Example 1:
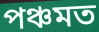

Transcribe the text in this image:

পঞ্চমত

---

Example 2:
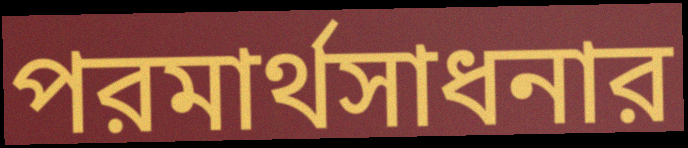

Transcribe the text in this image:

পরমার্থসাধনার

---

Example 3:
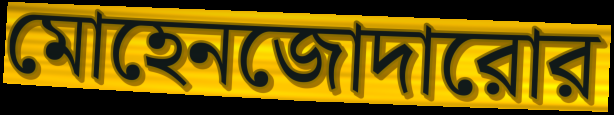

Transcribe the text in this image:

মোহেনজোদারোর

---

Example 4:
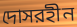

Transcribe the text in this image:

দোসরহীন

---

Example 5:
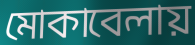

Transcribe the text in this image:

মোকাবেলায়